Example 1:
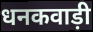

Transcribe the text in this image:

धनकवाड़ी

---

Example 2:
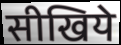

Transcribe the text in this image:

सीखिये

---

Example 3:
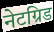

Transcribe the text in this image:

नेटग्रिड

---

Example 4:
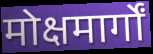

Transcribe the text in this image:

मोक्षमार्गों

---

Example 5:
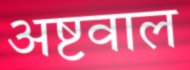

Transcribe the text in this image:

अष्टवाल